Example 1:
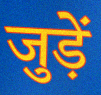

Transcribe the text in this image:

जुड़ें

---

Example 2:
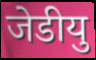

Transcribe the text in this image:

जेडीयु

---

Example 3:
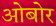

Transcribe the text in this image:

ओबोर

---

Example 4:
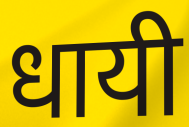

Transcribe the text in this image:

धायी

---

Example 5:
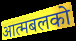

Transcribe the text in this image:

आत्मबलको